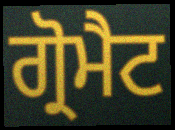
ਗ੍ਰੋਮੈਟ